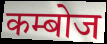
कम्बोज